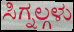
ಸಿಗ್ನಲ್ಗಳು